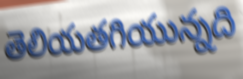
తెలియతగియున్నది